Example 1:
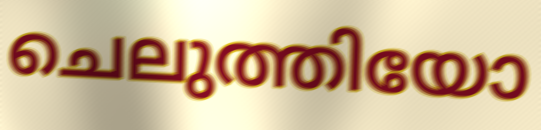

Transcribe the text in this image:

ചെലുത്തിയോ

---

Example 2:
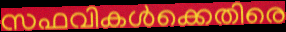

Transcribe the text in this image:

സഫവികൾക്കെതിരെ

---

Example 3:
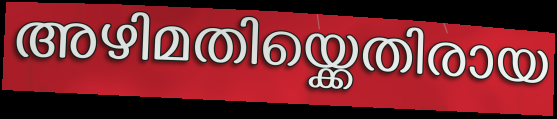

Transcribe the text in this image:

അഴിമതിയ്ക്കെതിരായ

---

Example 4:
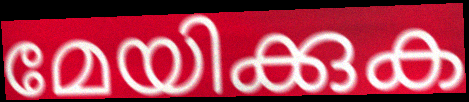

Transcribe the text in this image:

മേയിക്കുക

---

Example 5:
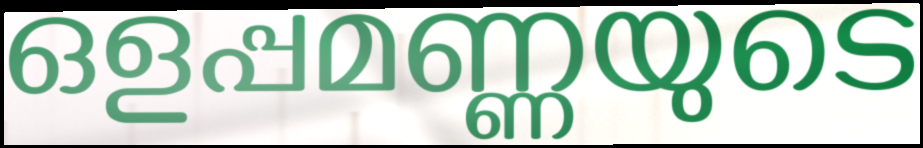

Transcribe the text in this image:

ഒളപ്പമണ്ണയുടെ